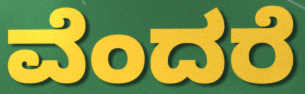
ವೆಂದರೆ